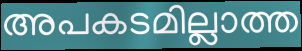
അപകടമില്ലാത്ത